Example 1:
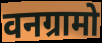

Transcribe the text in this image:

वनग्रामो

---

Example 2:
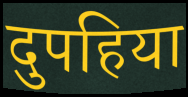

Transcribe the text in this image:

दुपहिया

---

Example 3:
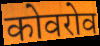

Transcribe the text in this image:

कोवरोव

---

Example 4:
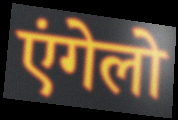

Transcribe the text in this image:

एंगेलो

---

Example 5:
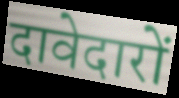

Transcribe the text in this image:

दावेदारों